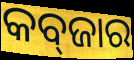
କବ୍‌ଜାର